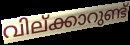
വില്ക്കാറുണ്ട്